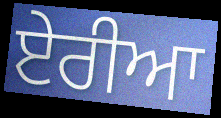
ਏਰੀਆ